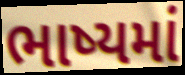
ભાષ્યમાં